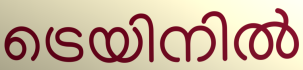
ട്രെയിനിൽ